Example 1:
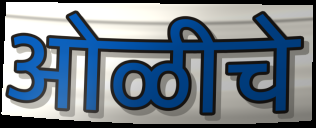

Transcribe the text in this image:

ओळीचे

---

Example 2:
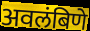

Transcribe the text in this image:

अवलंबिणे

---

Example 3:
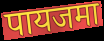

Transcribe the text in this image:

पायजमा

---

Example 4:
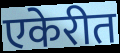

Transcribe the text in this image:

एकेरीत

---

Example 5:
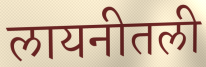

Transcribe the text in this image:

लायनीतली